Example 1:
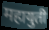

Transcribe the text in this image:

महायुती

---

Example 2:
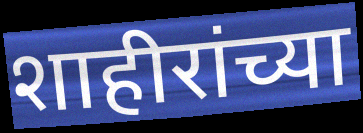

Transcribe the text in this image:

शाहीरांच्या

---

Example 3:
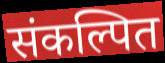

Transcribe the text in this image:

संकल्पित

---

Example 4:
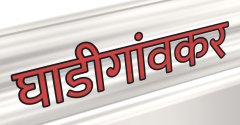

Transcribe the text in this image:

घाडीगांवकर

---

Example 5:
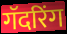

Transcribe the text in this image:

गॅदरिंग